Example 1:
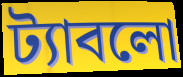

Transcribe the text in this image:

ট্যাবলো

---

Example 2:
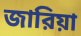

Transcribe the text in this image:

জারিয়া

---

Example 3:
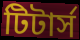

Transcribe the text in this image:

টিটার্স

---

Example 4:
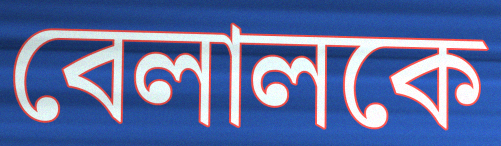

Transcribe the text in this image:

বেলালকে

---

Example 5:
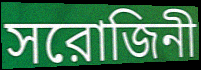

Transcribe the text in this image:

সরোজিনী